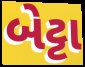
બેટ્ટા